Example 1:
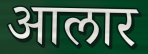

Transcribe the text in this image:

आलार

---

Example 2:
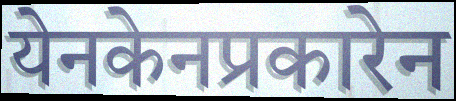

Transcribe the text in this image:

येनकेनप्रकारेन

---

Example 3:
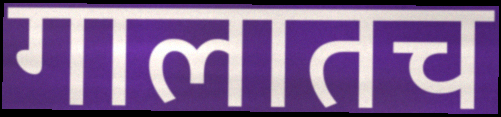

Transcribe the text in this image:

गालातच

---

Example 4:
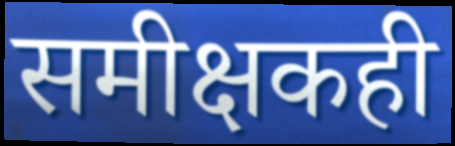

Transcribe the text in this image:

समीक्षकही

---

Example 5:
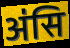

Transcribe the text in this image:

अ॑सि